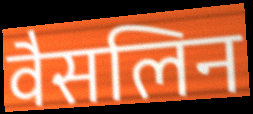
वैसलिन